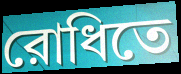
রোধিতে